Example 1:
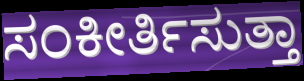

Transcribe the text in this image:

ಸಂಕೀರ್ತಿಸುತ್ತಾ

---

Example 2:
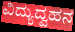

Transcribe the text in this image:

ವಿದ್ಯುದ್ವಹನ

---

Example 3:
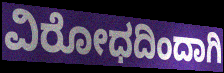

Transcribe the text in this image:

ವಿರೋಧದಿಂದಾಗಿ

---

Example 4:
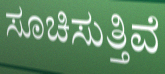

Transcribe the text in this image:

ಸೂಚಿಸುತ್ತಿವೆ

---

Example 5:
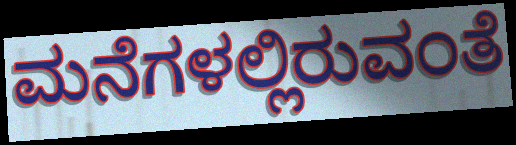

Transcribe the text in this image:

ಮನೆಗಳಲ್ಲಿರುವಂತೆ